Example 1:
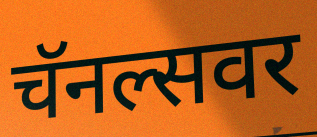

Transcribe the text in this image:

चॅनल्सवर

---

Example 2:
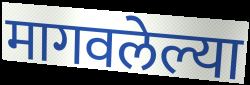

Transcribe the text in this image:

मागवलेल्या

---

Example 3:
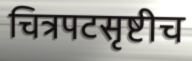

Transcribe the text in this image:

चित्रपटसृष्टीच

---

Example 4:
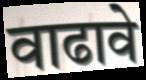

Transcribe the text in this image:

वाढावे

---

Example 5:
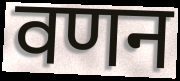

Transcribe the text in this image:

वणन